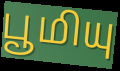
பூமியு